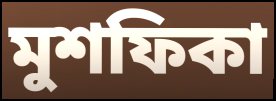
মুশফিকা